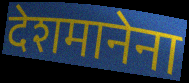
देशमानेना